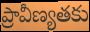
ప్రావీణ్యతకు